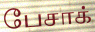
பேசாக்